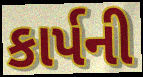
કાર્પની